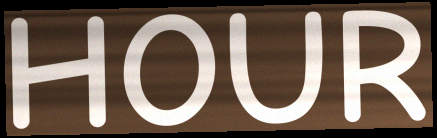
HOUR